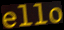
ello